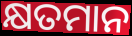
କ୍ଷତମାନ